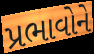
પ્રભાવોને